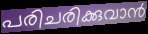
പരിചരിക്കുവാൻ